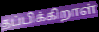
தப்பிக்கிறாள்